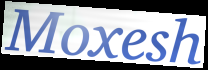
Moxesh